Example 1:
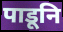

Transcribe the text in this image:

पाडूनि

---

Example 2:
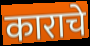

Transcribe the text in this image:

काराचे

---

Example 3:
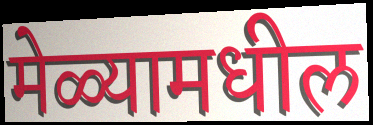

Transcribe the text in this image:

मेळ्यामधील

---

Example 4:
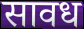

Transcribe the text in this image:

सावध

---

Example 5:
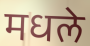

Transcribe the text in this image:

मधले